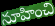
నూహించి